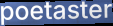
poetaster